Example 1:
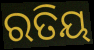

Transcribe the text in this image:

ରତିୟ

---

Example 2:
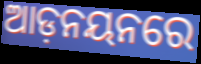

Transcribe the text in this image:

ଆଡ଼ନୟନରେ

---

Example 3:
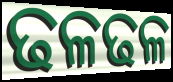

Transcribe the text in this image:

ଢଳଢଳ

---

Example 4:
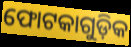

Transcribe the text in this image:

ଫୋଟକାଗୁଡ଼ିକ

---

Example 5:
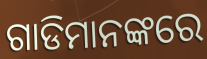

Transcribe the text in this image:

ଗାଡିମାନଙ୍କରେ